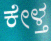
ಕೇಳ್ತ